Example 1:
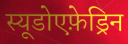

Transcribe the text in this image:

स्यूडोएफ़ेड्रिन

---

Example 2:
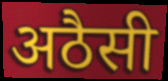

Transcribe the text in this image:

अठैसी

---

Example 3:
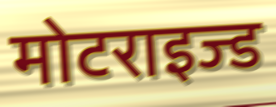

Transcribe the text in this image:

मोटराइज्ड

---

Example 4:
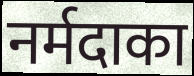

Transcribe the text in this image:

नर्मदाका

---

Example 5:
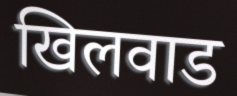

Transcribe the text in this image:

खिलवाड